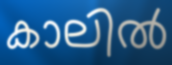
കാലിൽ